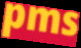
pms